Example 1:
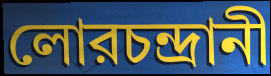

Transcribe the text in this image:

লোরচন্দ্রানী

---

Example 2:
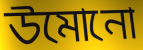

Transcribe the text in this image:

উমোনো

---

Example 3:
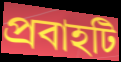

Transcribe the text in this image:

প্রবাহটি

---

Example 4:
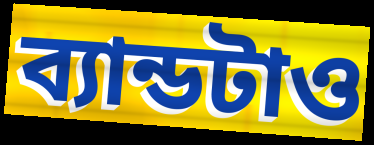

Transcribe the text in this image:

ব্যান্ডটাও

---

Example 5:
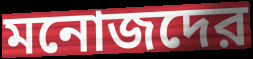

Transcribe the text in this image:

মনোজদের